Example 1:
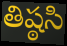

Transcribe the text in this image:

తిష్ఠసి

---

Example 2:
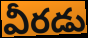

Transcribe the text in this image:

వీరడు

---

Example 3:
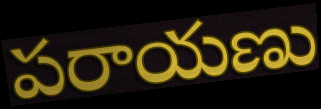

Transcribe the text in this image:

పరాయణు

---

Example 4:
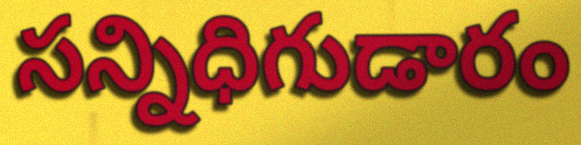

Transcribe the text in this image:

సన్నిధిగుడారం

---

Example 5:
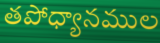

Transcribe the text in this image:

తపోధ్యానముల